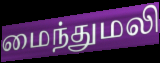
மைந்துமலி